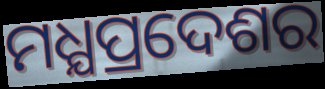
ମଧ୍ଯପ୍ରଦେଶର